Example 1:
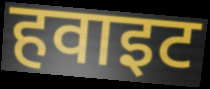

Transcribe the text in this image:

हवाइट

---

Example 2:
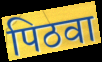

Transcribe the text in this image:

पिठवा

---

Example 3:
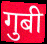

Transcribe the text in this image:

गुबी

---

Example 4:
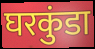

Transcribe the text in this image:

घरकुंडा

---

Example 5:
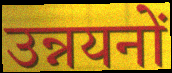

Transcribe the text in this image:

उन्नयनों